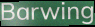
Barwing